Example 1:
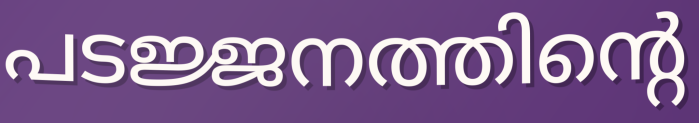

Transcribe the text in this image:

പടജ്ജനത്തിന്റെ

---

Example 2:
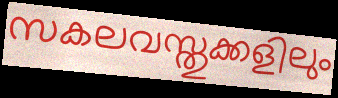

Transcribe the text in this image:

സകലവസ്തുക്കളിലും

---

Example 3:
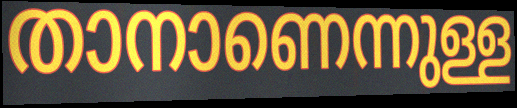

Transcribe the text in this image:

താനാണെന്നുള്ള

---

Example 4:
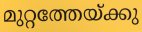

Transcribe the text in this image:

മുറ്റത്തേയ്ക്കു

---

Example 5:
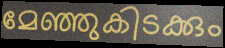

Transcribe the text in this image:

മേഞ്ഞുകിടക്കും